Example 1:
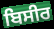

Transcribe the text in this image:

ਬਿਸੀਰ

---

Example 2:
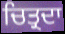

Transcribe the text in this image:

ਚਿਤ੍ਰਦਾ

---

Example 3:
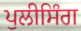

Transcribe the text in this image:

ਪੁਲੀਸਿੰਗ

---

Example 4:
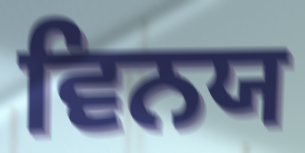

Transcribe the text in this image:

ਵਿਨਯ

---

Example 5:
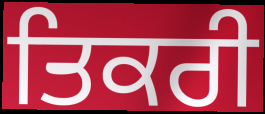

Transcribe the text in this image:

ਤਿਕਰੀ